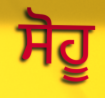
ਸੋਹੂ